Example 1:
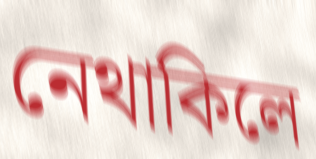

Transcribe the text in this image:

নেথাকিলে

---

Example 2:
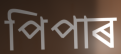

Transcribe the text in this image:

পিপাৰ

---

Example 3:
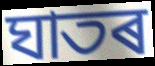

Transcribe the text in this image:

ঘাতৰ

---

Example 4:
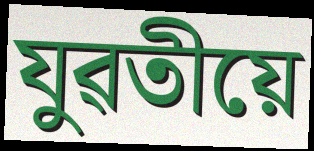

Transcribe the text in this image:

যুৱতীয়ে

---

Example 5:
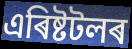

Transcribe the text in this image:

এৰিষ্টটলৰ